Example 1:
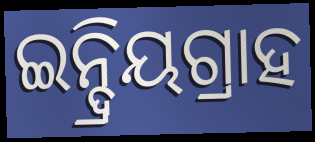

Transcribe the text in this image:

ଇନ୍ଦ୍ରିୟଗ୍ରାହ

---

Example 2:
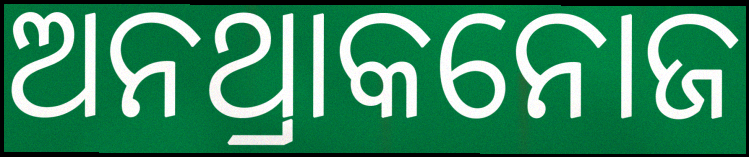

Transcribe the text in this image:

ଅନଥ୍ରାକନୋଜ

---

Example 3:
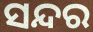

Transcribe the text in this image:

ସନ୍ଦର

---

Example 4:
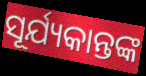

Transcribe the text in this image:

ସୂର୍ଯ୍ୟକାନ୍ତଙ୍କ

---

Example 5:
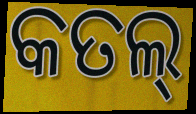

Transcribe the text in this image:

କତଲ୍